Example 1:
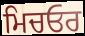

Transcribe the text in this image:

ਮਿਚਓਰ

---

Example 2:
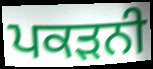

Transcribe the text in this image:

ਪਕੜਨੀ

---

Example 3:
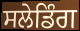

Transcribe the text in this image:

ਸਲੇਡਿੰਗ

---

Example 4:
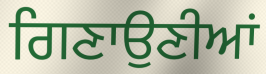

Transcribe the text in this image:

ਗਿਣਾਉਣੀਆਂ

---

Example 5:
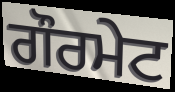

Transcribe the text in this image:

ਗੌਰਮੇਟ